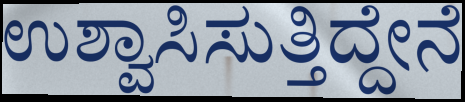
ಉಶ್ವಾಸಿಸುತ್ತಿದ್ದೇನೆ